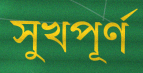
সুখপূর্ণ